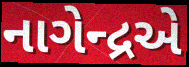
નાગેન્દ્રએ